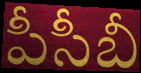
పీసీబీ